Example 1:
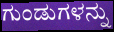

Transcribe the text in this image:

ಗುಂಡುಗಳನ್ನು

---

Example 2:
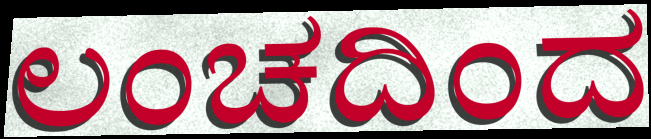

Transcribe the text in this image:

ಲಂಚದಿಂದ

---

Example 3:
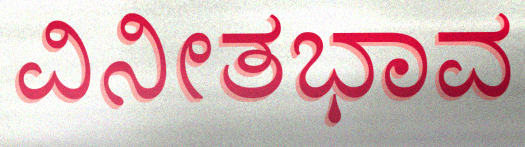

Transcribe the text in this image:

ವಿನೀತಭಾವ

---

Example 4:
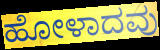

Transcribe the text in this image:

ಹೋಳಾದವು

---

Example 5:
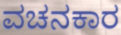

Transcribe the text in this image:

ವಚನಕಾರ